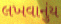
લખવાનુંય